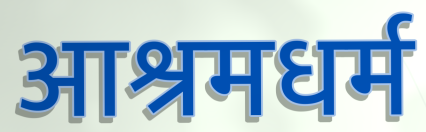
आश्रमधर्म